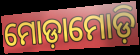
ମୋଡ଼ାମୋଡ଼ି